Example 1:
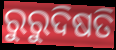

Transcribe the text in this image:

ରୁରୁଦିଷତି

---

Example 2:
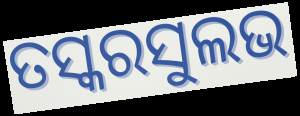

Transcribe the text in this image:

ତସ୍କରସୁଲଭ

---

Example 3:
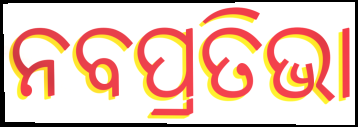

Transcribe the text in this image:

ନବପ୍ରତିଭା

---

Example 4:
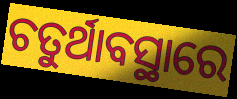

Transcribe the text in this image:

ଚତୁର୍ଥାବସ୍ଥାରେ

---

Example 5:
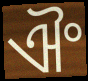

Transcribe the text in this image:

ଐଂ